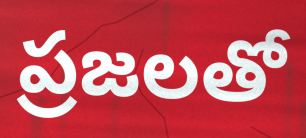
ప్రజలతో